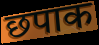
छपाक